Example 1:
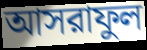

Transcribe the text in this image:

আসরাফুল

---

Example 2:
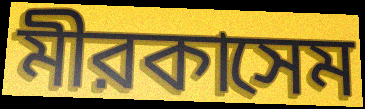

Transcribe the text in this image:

মীরকাসেম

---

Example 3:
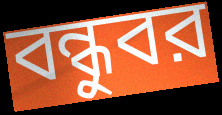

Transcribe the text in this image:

বন্ধুবর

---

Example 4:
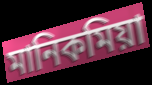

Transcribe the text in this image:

মানিকমিয়া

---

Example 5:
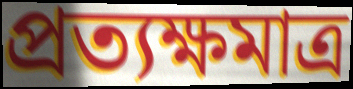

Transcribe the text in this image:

প্রত্যক্ষমাত্র